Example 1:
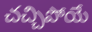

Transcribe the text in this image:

చచ్చిపోయే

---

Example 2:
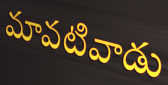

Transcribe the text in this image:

మావటివాడు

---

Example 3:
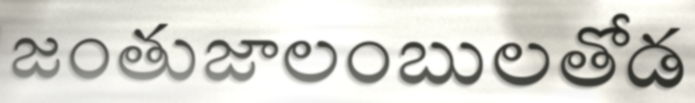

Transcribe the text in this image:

జంతుజాలంబులతోడ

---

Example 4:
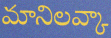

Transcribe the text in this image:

మానిలవ్కా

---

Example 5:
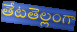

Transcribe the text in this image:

తేటతెల్లంగా